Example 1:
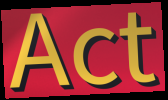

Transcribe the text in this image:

Act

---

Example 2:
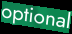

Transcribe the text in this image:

optional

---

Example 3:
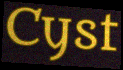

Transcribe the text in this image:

Cyst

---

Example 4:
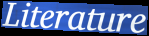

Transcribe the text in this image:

Literature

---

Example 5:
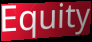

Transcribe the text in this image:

Equity